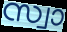
സ്വാ